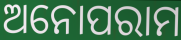
ଅନୋପରାମ